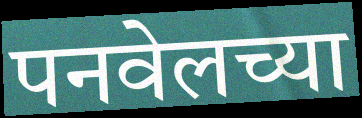
पनवेलच्या